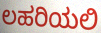
ಲಹರಿಯಲಿ